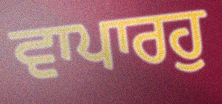
ਵਾਪਾਰਹੁ